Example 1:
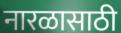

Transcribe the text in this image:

नारळासाठी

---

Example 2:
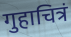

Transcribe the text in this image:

गुहाचित्रं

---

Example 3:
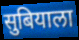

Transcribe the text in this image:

सुबियाला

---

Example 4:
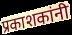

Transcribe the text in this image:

प्रकाशकांनी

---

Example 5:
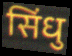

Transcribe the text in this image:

सिंधु